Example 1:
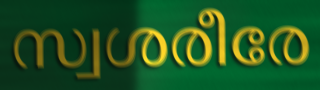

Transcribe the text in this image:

സ്വശരീരേ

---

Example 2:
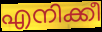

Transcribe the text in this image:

എനിക്കീ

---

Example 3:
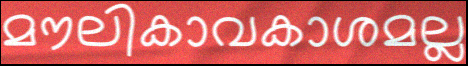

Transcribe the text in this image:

മൗലികാവകാശമല്ല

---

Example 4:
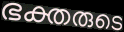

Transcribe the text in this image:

ഭക്തരുടെ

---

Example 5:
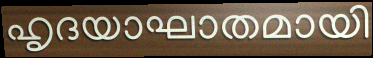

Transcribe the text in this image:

ഹൃദയാഘാതമായി